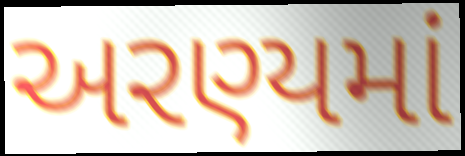
અરણ્યમાં